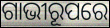
ଗାଭୀରୂପରେ